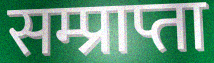
सम्प्राप्ता